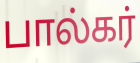
பால்கர்